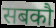
सबकौ